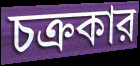
চক্রকার